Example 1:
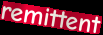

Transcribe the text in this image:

remittent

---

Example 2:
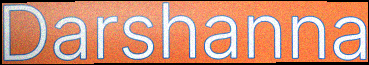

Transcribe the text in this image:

Darshanna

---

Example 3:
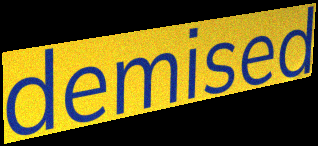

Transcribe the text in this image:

demised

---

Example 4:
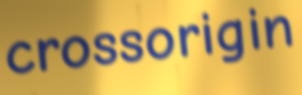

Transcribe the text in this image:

crossorigin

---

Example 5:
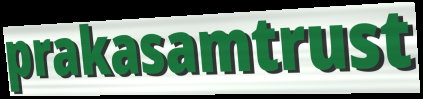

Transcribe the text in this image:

prakasamtrust